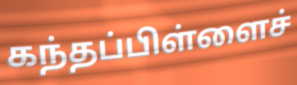
கந்தப்பிள்ளைச்